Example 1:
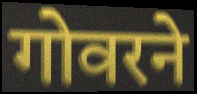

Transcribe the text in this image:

गोवरने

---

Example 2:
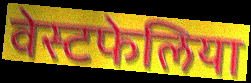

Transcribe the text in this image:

वेस्टफेलिया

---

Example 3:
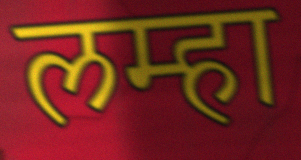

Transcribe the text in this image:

लम्हा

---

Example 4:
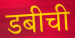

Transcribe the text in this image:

डबीची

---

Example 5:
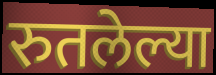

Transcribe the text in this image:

रुतलेल्या